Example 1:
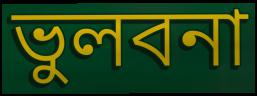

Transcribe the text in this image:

ভুলবনা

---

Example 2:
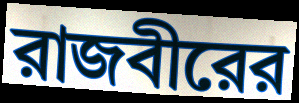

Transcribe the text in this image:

রাজবীরের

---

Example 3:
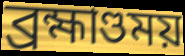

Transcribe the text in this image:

ব্রহ্মাণ্ডময়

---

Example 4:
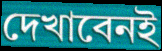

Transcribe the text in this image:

দেখাবেনই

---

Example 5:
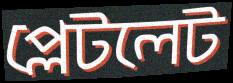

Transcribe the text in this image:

প্লেটলেট